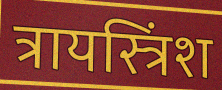
त्रायस्त्रिंश